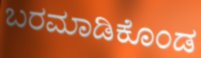
ಬರಮಾಡಿಕೊಂಡ